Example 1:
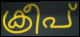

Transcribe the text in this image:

ക്രീപ്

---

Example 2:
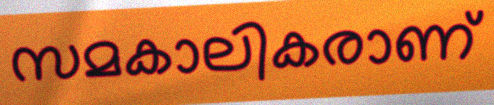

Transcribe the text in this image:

സമകാലികരാണ്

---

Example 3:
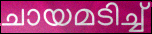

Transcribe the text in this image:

ചായമടിച്ച്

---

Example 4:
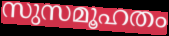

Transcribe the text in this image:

സുസമൂഹതം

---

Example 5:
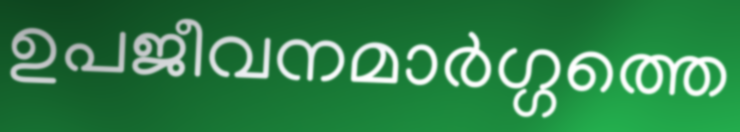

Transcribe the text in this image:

ഉപജീവനമാർഗ്ഗത്തെ